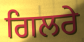
ਗਿਲਰੇ